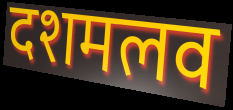
दशमलव